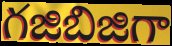
గజిబిజిగా